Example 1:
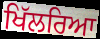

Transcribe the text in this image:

ਖਿੱਲਰਿਆ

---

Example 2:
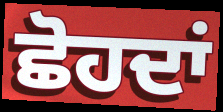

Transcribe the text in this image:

ਛੋਹਦਾਂ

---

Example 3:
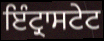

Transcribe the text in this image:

ਇੰਟ੍ਰਾਸਟੇਟ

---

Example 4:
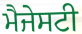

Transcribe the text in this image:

ਮੈਜੇਸਟੀ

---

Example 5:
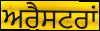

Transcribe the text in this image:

ਅਰੈਸਟਰਾਂ